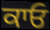
ਕਾਓ